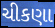
ચીકણા